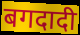
बगदादी